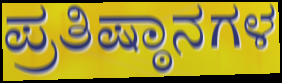
ಪ್ರತಿಷ್ಠಾನಗಳ